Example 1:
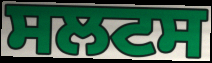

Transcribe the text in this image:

ਸਲਟਸ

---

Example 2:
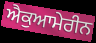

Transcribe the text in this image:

ਐਕੁਆਮੇਰੀਨ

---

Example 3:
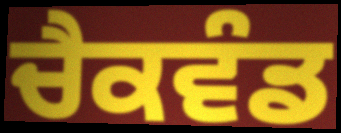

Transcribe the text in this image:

ਚੈਕਵੰਡ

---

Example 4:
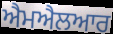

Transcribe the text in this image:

ਐਮਐਲਆਰ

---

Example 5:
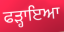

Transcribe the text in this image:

ਫੜ੍ਹਾਇਆ